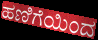
ಹಣಿಗೆಯಿಂದ